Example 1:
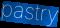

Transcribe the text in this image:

pastry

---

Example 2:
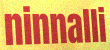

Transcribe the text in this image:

ninnalli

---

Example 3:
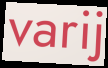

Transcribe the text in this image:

varij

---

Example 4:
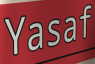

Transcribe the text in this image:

Yasaf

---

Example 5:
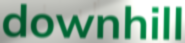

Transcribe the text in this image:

downhill